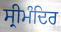
ਸ੍ਰੀਮੰਦਿਰ